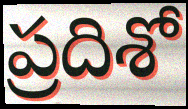
ప్రదిశో